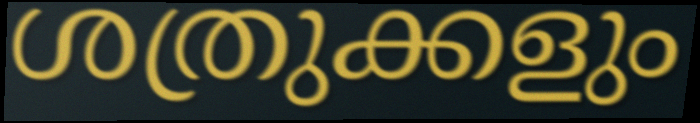
ശത്രുക്കളും